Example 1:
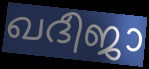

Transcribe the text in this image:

ഖദീജാ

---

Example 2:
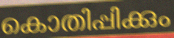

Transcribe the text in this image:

കൊതിപ്പിക്കും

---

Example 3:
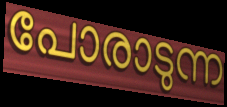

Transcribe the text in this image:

പോരാടുന്ന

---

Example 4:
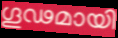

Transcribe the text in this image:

ഗൂഢമായി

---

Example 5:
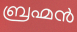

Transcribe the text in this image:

ബ്രഹ്മൻ